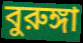
বুরুঙ্গা